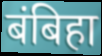
बंबिहा